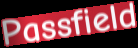
Passfield